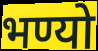
भण्यो